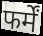
फर्में